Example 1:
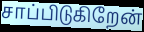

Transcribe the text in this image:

சாப்பிடுகிறேன்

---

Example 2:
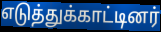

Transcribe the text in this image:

எடுத்துக்காட்டினர்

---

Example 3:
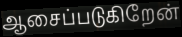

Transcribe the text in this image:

ஆசைப்படுகிறேன்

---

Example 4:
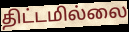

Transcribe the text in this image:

திட்டமில்லை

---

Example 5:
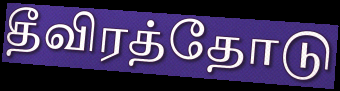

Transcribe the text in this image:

தீவிரத்தோடு